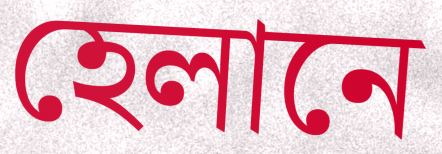
হেলানে